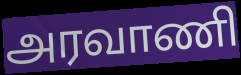
அரவாணி